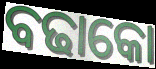
ବଢାକୋ